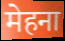
मेहना